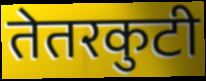
तेतरकुटी